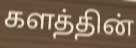
களத்தின்